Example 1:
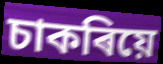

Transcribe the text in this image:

চাকৰিয়ে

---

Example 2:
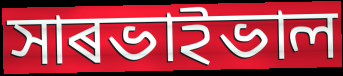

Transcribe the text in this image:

সাৰভাইভাল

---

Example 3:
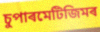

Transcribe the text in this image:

চুপাৰমেটিজিমৰ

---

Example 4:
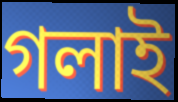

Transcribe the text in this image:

গলাই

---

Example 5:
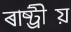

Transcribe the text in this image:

ৰাষ্ট্ৰীয়